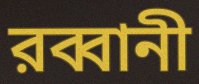
রব্বানী